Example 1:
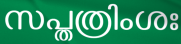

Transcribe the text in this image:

സപ്തത്രിംശഃ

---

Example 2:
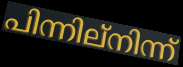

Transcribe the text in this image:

പിന്നില്നിന്ന്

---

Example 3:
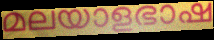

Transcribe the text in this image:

മലയാളഭാഷ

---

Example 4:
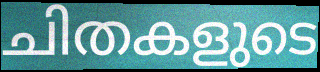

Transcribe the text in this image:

ചിതകളുടെ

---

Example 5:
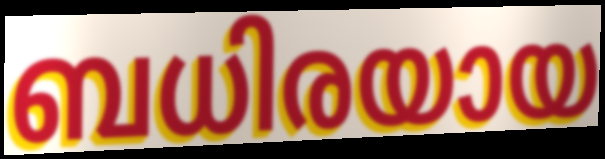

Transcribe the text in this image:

ബധിരയായ